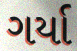
ગર્યા